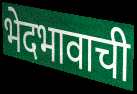
भेदभावाची